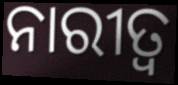
ନାରୀତ୍ୱ